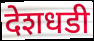
देशधडी